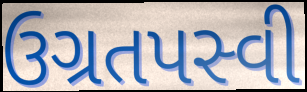
ઉગ્રતપસ્વી